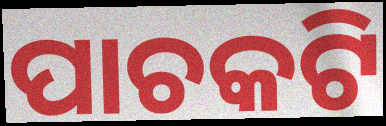
ପାଚକଟି